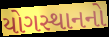
યોગસ્થાનનો